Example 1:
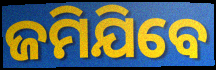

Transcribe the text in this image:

ଜମିଯିବେ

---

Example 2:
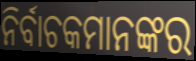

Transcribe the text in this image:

ନିର୍ବାଚକମାନଙ୍କର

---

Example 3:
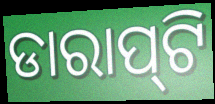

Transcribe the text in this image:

ଡାରାପ୍‌ଟି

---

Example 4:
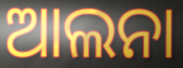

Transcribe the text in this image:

ଆଲନା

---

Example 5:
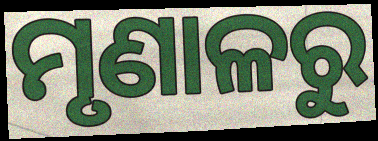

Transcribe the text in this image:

ମୃଣାଳରୁ